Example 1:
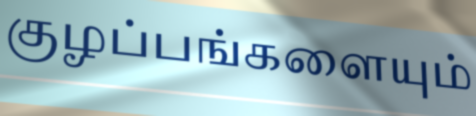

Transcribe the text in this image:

குழப்பங்களையும்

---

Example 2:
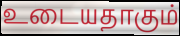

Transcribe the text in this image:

உடையதாகும்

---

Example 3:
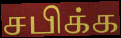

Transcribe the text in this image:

சபிக்க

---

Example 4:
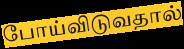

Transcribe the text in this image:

போய்விடுவதால்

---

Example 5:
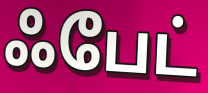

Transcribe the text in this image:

ஃபேட்